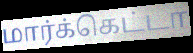
மார்க்கெட்டா